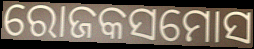
ରୋଜକସମୋସ